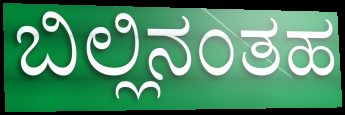
ಬಿಲ್ಲಿನಂತಹ